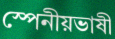
স্পেনীয়ভাষী